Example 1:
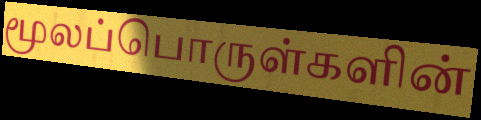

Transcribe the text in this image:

மூலப்பொருள்களின்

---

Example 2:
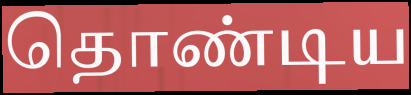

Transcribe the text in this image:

தொண்டிய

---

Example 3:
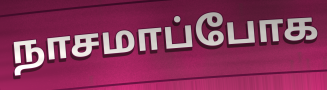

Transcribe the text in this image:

நாசமாப்போக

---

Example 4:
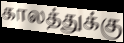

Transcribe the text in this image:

காலத்துக்கு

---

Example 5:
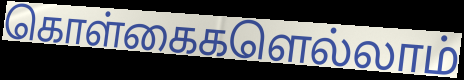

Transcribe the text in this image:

கொள்கைகளெல்லாம்